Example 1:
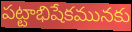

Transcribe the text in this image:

పట్టాభిషేకమునకు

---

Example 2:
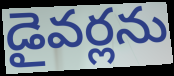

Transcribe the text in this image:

డైవర్లను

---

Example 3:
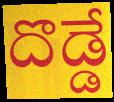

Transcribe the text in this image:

దొడ్డే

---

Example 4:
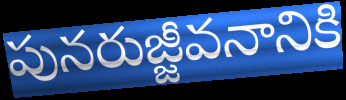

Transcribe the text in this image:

పునరుజ్జీవనానికి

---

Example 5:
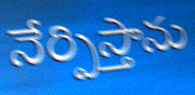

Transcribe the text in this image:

నేర్పిస్తాను